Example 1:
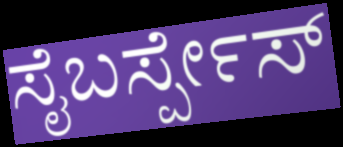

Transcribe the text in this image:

ಸೈಬರ್ಸ್ಪೇಸ್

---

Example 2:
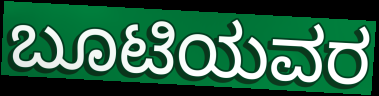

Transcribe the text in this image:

ಬೂಟಿಯವರ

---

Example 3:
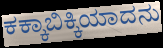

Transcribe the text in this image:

ಕಕ್ಕಾಬಿಕ್ಕಿಯಾದನು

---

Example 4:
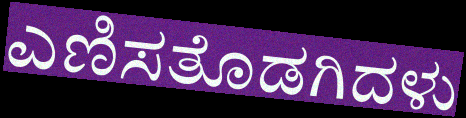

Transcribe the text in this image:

ಎಣಿಸತೊಡಗಿದಳು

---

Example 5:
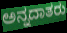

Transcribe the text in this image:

ಅನ್ನದಾತರು